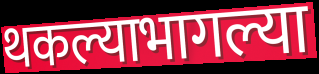
थकल्याभागल्या